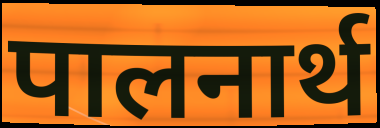
पालनार्थ